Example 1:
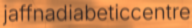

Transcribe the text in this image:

jaffnadiabeticcentre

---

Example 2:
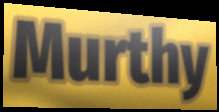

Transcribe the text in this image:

Murthy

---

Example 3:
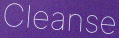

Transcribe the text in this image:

Cleanse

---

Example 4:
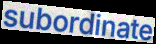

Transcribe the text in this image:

subordinate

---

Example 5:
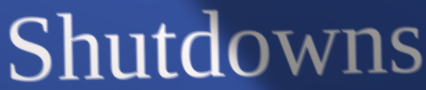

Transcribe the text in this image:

Shutdowns